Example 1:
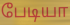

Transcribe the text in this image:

பேடியா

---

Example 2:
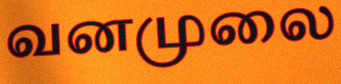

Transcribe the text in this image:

வனமுலை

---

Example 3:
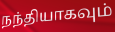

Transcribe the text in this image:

நந்தியாகவும்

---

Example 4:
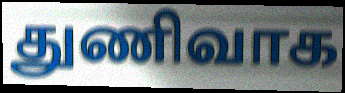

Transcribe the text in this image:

துணிவாக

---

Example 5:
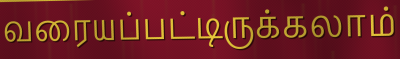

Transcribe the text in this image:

வரையப்பட்டிருக்கலாம்